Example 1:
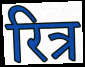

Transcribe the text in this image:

रित्र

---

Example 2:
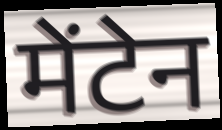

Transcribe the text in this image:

मेंटेन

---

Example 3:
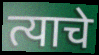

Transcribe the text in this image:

त्याचे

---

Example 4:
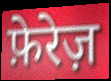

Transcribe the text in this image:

फ़ेरेज़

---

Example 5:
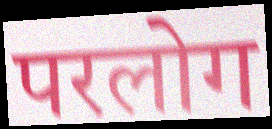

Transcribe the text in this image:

परलोग